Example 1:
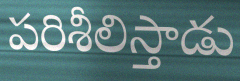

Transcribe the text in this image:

పరిశీలిస్తాడు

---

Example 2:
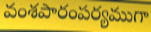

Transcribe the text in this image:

వంశపారంపర్యముగా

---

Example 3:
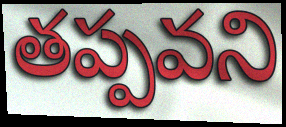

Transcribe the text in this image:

తప్పవని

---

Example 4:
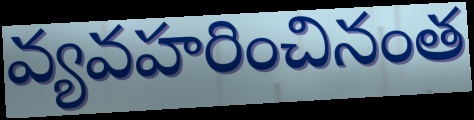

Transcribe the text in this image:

వ్యవహరించినంత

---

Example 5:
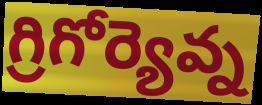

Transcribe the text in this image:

గ్రిగోర్యెవ్న